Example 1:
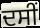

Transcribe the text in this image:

ਦਸੀਂ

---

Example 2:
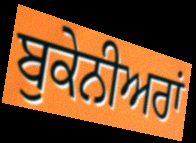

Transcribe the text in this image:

ਬੁਕੇਨੀਅਰਾਂ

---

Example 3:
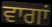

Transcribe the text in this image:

ਵਾਗਾਂ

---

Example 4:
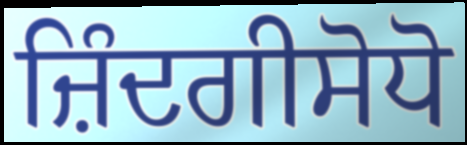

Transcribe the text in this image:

ਜ਼ਿੰਦਗੀਸੋਧੋ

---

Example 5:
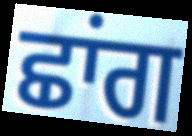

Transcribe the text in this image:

ਛਾਂਗ